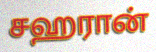
சஹரான்